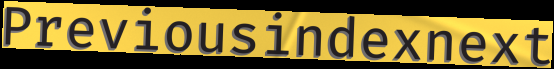
Previousindexnext